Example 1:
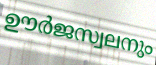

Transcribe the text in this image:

ഊർജസ്വലനും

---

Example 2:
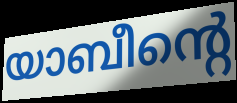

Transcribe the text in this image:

യാബീന്റെ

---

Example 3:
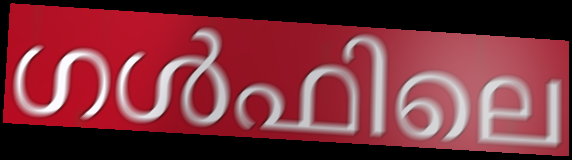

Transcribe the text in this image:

ഗൾഫിലെ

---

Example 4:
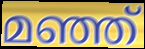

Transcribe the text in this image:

മഞ്ഞ്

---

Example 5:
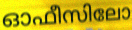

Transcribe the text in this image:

ഓഫീസിലോ